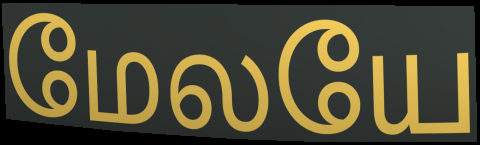
மேலயே